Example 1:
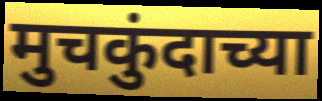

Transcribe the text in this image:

मुचकुंदाच्या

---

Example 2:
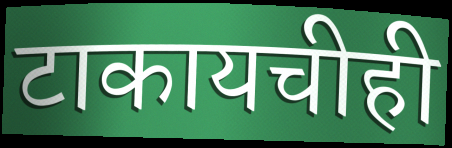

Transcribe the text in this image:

टाकायचीही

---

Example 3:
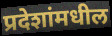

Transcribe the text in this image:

प्रदेशांमधील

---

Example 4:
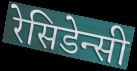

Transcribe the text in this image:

रेसिडेन्सी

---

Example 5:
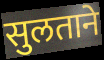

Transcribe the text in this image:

सुलताने